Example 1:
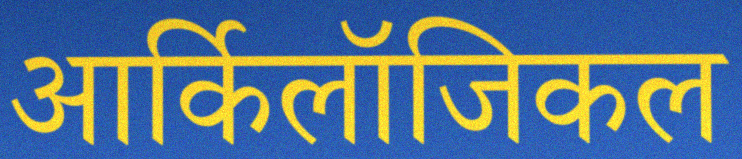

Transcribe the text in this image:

आर्किलॉजिकल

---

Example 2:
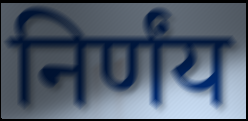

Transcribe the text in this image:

निर्णंय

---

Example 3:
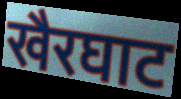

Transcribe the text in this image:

खैरघाट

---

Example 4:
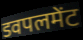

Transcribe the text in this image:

डवपलमेंट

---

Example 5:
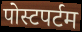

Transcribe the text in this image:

पोस्टपर्टम